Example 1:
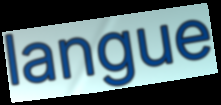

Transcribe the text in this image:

langue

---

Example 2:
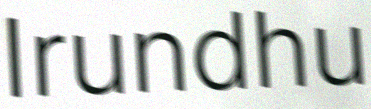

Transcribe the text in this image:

Irundhu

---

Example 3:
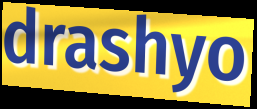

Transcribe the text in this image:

drashyo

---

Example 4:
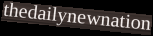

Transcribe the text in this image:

thedailynewnation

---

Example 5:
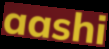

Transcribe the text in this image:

aashi